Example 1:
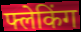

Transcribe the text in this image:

फ्लेकिंग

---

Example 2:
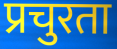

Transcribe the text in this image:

प्रचुरता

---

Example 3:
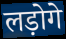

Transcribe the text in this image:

लड़ोगे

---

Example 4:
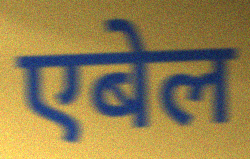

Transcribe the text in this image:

एबेल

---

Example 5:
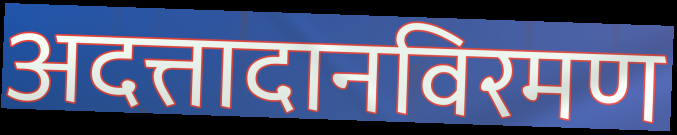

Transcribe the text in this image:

अदत्तादानविरमण